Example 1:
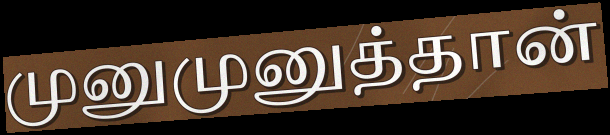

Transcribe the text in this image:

முனுமுனுத்தான்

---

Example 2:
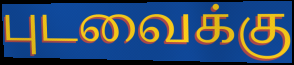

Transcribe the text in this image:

புடவைக்கு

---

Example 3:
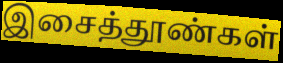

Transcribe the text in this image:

இசைத்தூண்கள்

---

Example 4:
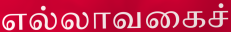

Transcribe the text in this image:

எல்லாவகைச்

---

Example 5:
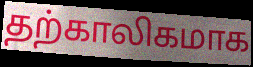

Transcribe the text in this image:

தற்காலிகமாக